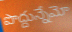
పొద్దున్నేమో